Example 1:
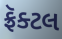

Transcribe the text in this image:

ફ્રૅક્ટલ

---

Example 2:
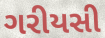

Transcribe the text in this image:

ગરીયસી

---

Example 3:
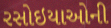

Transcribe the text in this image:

રસોઇયાઓની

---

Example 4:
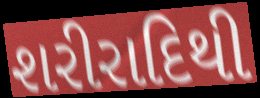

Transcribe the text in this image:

શરીરાદિથી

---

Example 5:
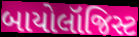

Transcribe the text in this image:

બાયોલૉજિસ્ટ